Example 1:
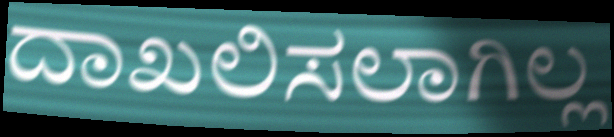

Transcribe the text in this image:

ದಾಖಲಿಸಲಾಗಿಲ್ಲ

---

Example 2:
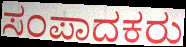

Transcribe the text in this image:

ಸಂಪಾದಕರು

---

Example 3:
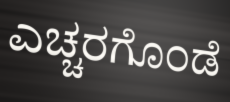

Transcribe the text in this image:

ಎಚ್ಚರಗೊಂಡೆ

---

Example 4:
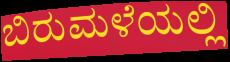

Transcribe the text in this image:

ಬಿರುಮಳೆಯಲ್ಲಿ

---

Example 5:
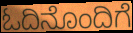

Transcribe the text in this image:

ಓದಿನೊಂದಿಗೆ